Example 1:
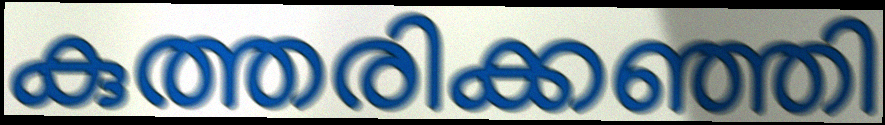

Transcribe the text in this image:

കുത്തരിക്കഞ്ഞി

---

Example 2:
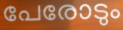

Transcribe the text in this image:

പേരോടും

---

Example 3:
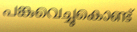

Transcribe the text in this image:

പങ്കുവെച്ചുകൊണ്ട്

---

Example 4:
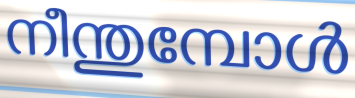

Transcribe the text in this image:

നീന്തുമ്പോൾ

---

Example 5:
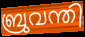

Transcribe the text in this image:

ബ്രുവന്തി